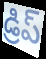
డ్రిప్